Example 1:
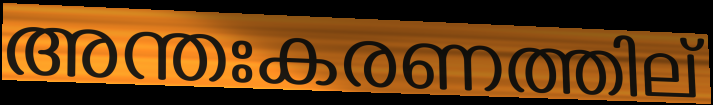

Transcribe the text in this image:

അന്തഃകരണത്തില്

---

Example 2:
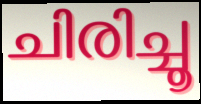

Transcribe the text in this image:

ചിരിച്ചൂ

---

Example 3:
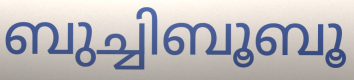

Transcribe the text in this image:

ബുച്ചിബൂബൂ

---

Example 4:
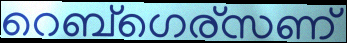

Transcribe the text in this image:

റെബ്ഗെര്സണ്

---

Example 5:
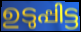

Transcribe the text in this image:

ഉടുപ്പിട്ട